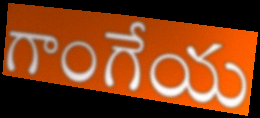
గాంగేయ